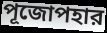
পূজোপহার